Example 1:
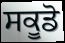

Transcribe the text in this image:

ਸਕੂਡੋ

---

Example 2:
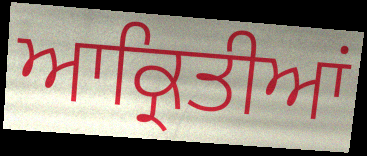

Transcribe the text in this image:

ਆਕ੍ਰਿਤੀਆਂ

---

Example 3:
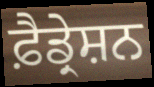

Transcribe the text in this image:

ਫ਼ੈਡ੍ਰੇਸ਼ਨ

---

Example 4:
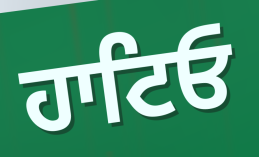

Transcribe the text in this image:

ਹਾਟਿਓ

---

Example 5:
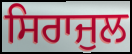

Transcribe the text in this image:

ਸਿਰਾਜੁਲ